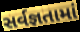
સર્વજ્ઞતામાં